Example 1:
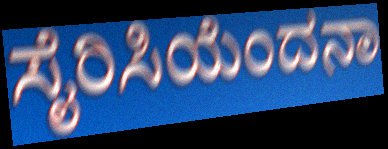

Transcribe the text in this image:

ಸೈರಿಸಿಯೆಂದನಾ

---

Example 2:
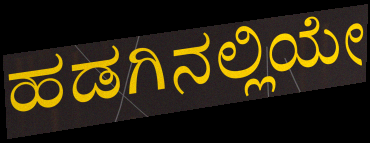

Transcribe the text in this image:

ಹಡಗಿನಲ್ಲಿಯೇ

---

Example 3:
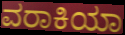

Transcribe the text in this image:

ವರಾಕಿಯಾ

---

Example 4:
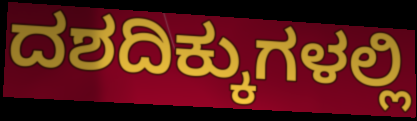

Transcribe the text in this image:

ದಶದಿಕ್ಕುಗಳಲ್ಲಿ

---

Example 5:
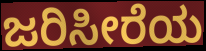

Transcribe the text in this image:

ಜರಿಸೀರೆಯ